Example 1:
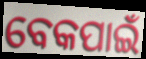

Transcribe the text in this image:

ବେକପାଇଁ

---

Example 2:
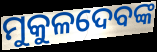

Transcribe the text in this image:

ମୁକୁଳଦେବଙ୍କ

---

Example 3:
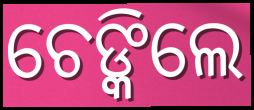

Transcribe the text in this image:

ଚେଙ୍କିଲେ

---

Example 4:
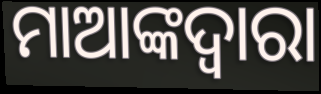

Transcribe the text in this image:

ମାଆଙ୍କଦ୍ଵାରା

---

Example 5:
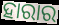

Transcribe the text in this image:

ହାରାର